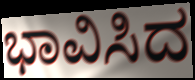
ಭಾವಿಸಿದ